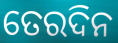
ତେରଦିନ